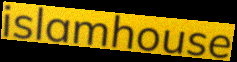
islamhouse